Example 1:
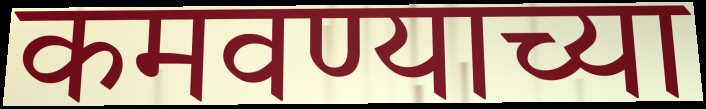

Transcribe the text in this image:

कमवण्याच्या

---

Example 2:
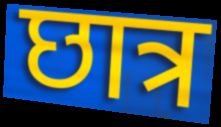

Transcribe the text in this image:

छात्र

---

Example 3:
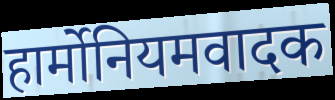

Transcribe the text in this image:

हार्मोनियमवादक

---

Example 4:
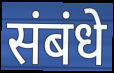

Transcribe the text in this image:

संबंधे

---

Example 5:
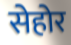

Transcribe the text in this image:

सेहोर